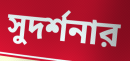
সুদর্শনার